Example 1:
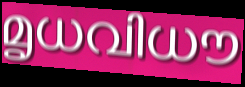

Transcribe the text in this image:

മൃധവിധൗ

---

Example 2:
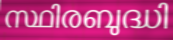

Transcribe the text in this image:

സ്ഥിരബുദ്ധി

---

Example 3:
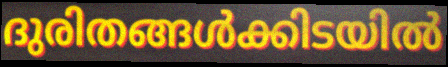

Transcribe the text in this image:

ദുരിതങ്ങൾക്കിടയിൽ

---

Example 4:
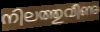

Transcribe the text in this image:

നിലത്തുവീണു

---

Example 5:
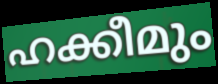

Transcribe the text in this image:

ഹക്കീമും